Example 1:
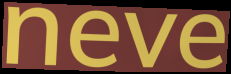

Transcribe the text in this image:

neve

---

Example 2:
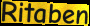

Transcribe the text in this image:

Ritaben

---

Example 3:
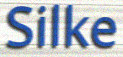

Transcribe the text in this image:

Silke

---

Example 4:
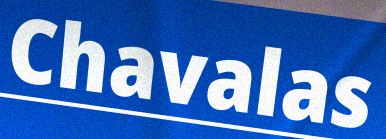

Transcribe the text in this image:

Chavalas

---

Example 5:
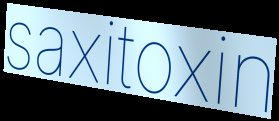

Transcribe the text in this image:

saxitoxin